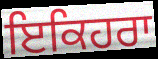
ਇਕਿਹਰਾ